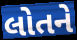
લોતને